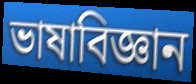
ভাষাবিজ্ঞান